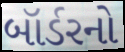
બૉર્ડરનો